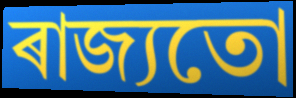
ৰাজ্যতো